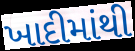
ખાદીમાંથી